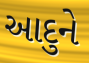
આદુને